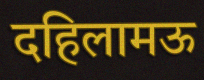
दहिलामऊ